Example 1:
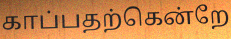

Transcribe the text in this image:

காப்பதற்கென்றே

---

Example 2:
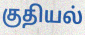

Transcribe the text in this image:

குதியல்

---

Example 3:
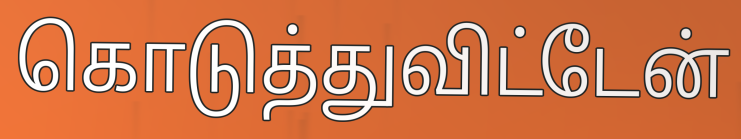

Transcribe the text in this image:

கொடுத்துவிட்டேன்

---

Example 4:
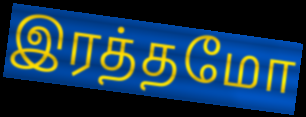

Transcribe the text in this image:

இரத்தமோ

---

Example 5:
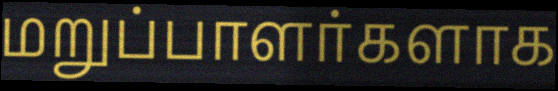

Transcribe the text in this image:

மறுப்பாளர்களாக